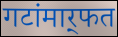
गटांमार्फत